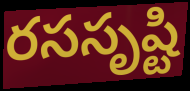
రససృష్టి